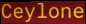
Ceylone